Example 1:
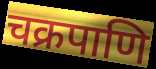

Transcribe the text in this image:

चक्रपाणि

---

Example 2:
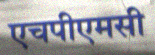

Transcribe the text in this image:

एचपीएमसी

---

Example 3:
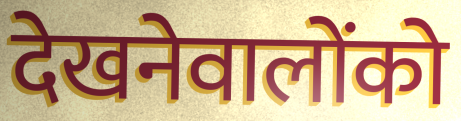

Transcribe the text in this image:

देखनेवालोंको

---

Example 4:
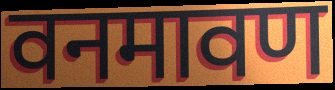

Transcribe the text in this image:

वनमावण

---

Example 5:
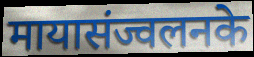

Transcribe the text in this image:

मायासंज्वलनके